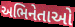
અભિનેતાઓ